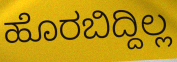
ಹೊರಬಿದ್ದಿಲ್ಲ